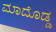
ಮಾದೊಡ್ಡ